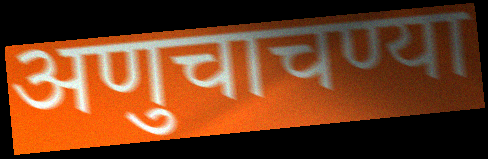
अणुचाचण्या